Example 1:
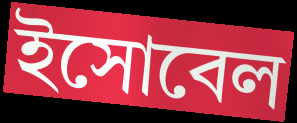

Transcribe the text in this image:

ইসোবেল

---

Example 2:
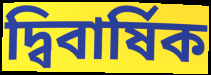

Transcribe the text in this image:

দ্বিবার্ষিক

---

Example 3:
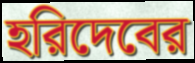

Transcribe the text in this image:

হরিদেবের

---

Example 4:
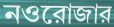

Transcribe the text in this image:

নওরোজার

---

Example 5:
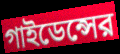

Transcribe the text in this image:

গাইডেন্সের